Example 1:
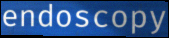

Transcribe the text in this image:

endoscopy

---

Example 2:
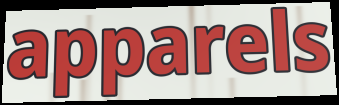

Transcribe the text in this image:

apparels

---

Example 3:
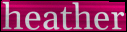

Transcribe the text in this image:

heather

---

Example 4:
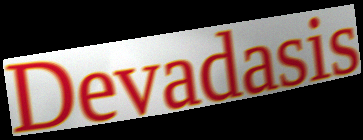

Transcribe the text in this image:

Devadasis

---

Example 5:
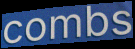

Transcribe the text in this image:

combs